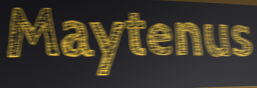
Maytenus